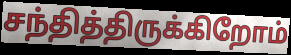
சந்தித்திருக்கிறோம்